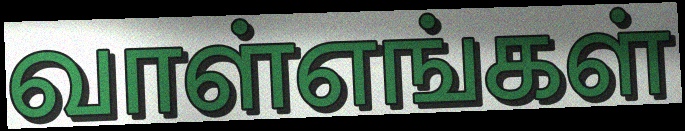
வாள்எங்கள்